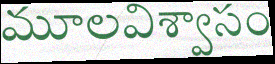
మూలవిశ్వాసం